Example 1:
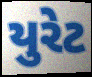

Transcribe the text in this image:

યુરેટ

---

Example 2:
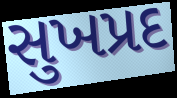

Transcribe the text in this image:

સુખપ્રદ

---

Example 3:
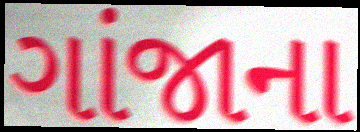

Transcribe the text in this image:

ગાંજાના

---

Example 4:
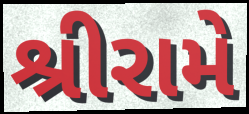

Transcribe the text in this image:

શ્રીરામે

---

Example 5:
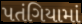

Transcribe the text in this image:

પતંગિયામાં